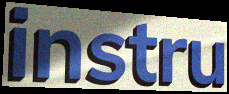
instru